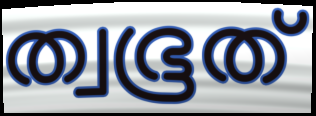
ത്വഭൂത്